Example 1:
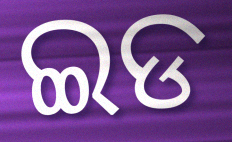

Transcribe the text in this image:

ଇଡ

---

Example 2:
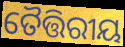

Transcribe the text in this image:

ତୈତ୍ତିରୀୟ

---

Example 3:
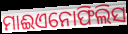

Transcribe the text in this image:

ମାଈଏନୋଫିଲିସ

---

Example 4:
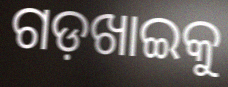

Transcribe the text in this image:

ଗଡ଼ଖାଇକୁ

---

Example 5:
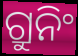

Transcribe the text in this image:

ଗ୍ରୁନିଂ